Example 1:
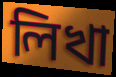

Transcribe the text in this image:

লিখা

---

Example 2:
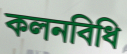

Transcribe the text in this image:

কলনবিধি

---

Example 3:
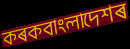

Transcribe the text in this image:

কৰকবাংলাদেশৰ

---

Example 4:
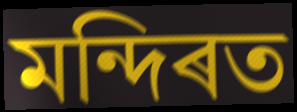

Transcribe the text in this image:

মন্দিৰত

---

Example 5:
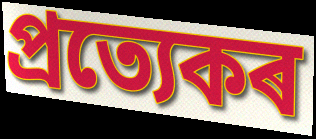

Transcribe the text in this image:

প্ৰত্যেকৰ